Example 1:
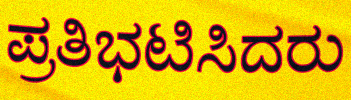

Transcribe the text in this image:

ಪ್ರತಿಭಟಿಸಿದರು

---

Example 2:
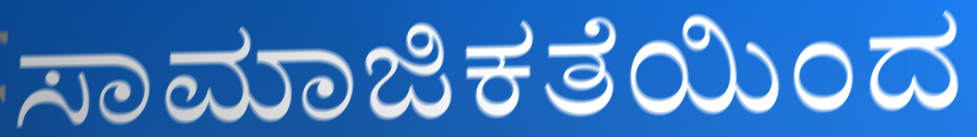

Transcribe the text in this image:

ಸಾಮಾಜಿಕತೆಯಿಂದ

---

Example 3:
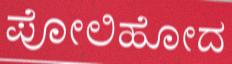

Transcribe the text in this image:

ಪೋಲಿಹೋದ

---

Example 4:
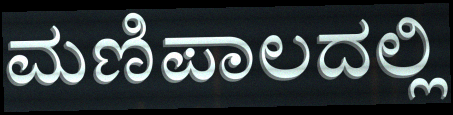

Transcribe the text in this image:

ಮಣಿಪಾಲದಲ್ಲಿ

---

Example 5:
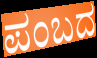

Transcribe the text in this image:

ಪಂಬದ